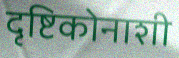
दृष्टिकोनाशी